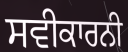
ਸਵੀਕਾਰਨੀ